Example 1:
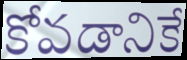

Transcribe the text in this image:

కోవడానికే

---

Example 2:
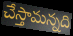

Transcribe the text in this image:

చేస్తామన్నది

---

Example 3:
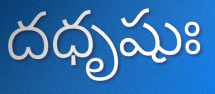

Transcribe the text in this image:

దధృషుః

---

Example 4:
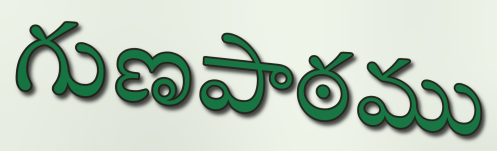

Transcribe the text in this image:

గుణపాఠము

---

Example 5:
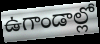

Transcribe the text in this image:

ఉగాండాల్లో